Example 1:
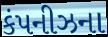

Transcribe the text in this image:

કંપનીઝના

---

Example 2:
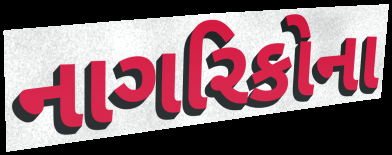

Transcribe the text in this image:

નાગરિકોના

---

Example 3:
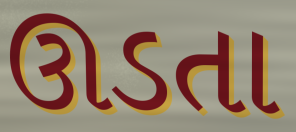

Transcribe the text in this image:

ઊડતા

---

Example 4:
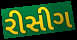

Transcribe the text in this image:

રીસીગ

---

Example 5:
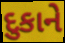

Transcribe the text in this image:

દુકાને